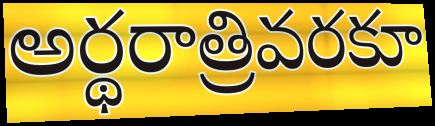
అర్థరాత్రివరకూ